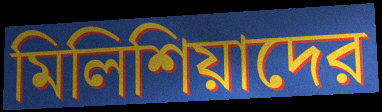
মিলিশিয়াদের